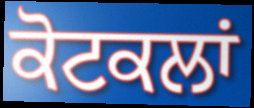
ਕੋਟਕਲਾਂ